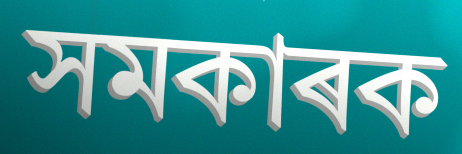
সমকাৰক